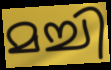
മച്ചി